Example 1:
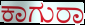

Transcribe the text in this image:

ಕಾಗುರಾ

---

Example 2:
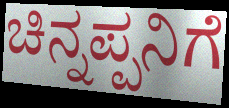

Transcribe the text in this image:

ಚಿನ್ನಪ್ಪನಿಗೆ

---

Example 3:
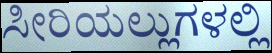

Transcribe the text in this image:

ಸೀರಿಯಲ್ಲುಗಳಲ್ಲಿ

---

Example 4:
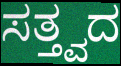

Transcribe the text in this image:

ಸತ್ತ್ವದ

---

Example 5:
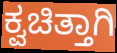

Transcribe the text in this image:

ಕ್ವಚಿತ್ತಾಗಿ